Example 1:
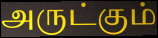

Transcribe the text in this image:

அருட்கும்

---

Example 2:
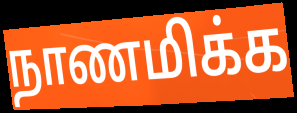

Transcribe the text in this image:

நாணமிக்க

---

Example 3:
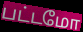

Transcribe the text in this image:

பட்டமோ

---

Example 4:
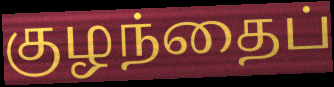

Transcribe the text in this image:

குழந்தைப்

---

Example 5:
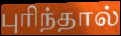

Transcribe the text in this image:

புரிந்தால்